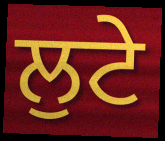
ਲੁਟੇ